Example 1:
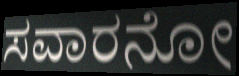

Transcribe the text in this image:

ಸವಾರನೋ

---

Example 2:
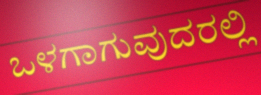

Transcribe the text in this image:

ಒಳಗಾಗುವುದರಲ್ಲಿ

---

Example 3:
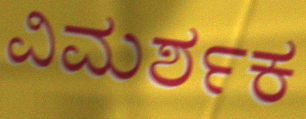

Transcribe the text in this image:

ವಿಮರ್ಶಕ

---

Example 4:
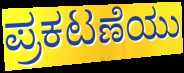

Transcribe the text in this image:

ಪ್ರಕಟಣೆಯು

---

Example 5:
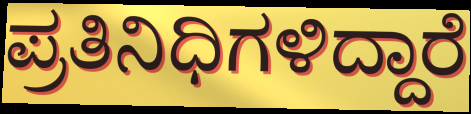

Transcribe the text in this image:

ಪ್ರತಿನಿಧಿಗಳಿದ್ದಾರೆ